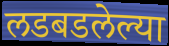
लडबडलेल्या